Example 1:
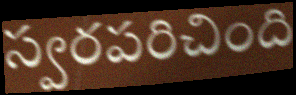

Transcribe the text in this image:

స్వరపరిచింది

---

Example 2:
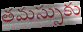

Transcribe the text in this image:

తమస్సుకు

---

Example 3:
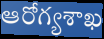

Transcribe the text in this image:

ఆరోగ్యశాఖ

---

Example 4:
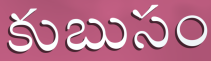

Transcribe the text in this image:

కుబుసం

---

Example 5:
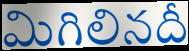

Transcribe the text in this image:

మిగిలినదీ